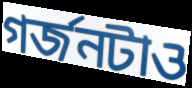
গর্জনটাও